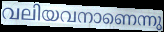
വലിയവനാണെന്നു